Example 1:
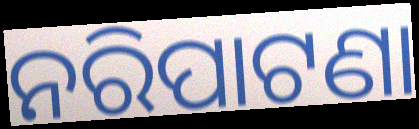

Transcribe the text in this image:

ନରିପାଟଣା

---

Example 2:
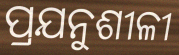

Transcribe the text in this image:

ପ୍ରଯନୁଶୀଳୀ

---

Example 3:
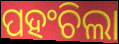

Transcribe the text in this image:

ପହଂଚିଲା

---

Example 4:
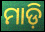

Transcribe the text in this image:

ମାଡ଼ି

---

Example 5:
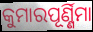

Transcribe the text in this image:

କୁମାରପୂର୍ଣ୍ଣିମା